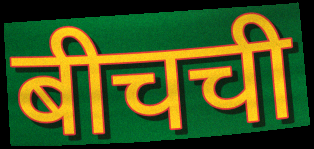
बीचची